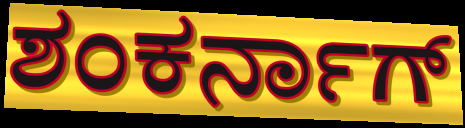
ಶಂಕರ್ನಾಗ್